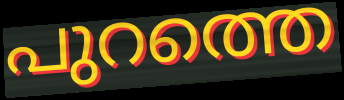
പുറത്തെ